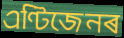
এণ্টিজেনৰ